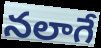
నలాగే